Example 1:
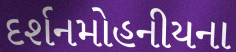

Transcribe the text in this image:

દર્શનમોહનીયના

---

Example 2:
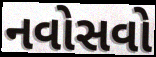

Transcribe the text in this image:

નવોસવો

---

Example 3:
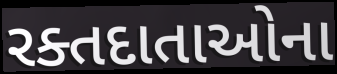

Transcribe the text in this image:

રક્તદાતાઓના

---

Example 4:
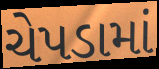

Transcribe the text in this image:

ચેપડામાં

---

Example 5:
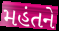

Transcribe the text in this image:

મહંતને